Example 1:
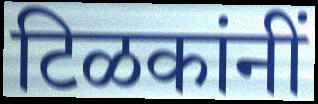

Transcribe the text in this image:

टिळकांनीं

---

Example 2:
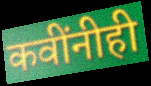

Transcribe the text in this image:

कवींनीही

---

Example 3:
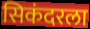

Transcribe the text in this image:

सिकंदरला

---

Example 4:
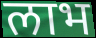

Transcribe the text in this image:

लाभ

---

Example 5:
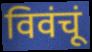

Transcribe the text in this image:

विवंचूं